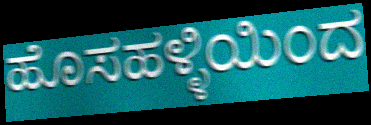
ಹೊಸಹಳ್ಳಿಯಿಂದ